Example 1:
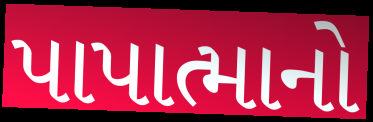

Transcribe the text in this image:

પાપાત્માનો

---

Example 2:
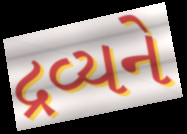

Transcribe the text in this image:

દ્રવ્યને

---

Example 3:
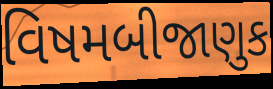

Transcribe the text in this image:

વિષમબીજાણુક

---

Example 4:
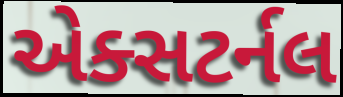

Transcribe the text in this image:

એક્સટર્નલ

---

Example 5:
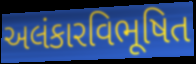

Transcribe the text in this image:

અલંકારવિભૂષિત